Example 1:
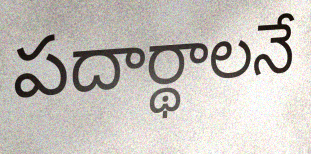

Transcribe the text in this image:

పదార్థాలనే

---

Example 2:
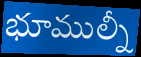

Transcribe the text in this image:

భూముల్నీ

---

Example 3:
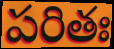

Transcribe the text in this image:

పరితః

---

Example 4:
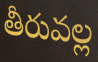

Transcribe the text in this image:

తీరువల్ల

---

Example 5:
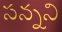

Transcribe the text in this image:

సన్నని